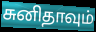
சுனிதாவும்